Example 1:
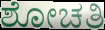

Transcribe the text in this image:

ಶೋಚತಿ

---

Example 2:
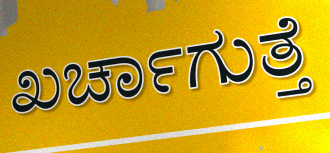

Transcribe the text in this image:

ಖರ್ಚಾಗುತ್ತೆ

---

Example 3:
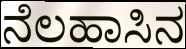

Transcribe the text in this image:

ನೆಲಹಾಸಿನ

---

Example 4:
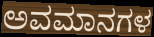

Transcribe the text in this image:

ಅವಮಾನಗಳ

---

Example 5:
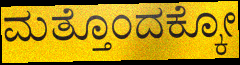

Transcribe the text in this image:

ಮತ್ತೊಂದಕ್ಕೋ